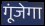
गूंजेगा